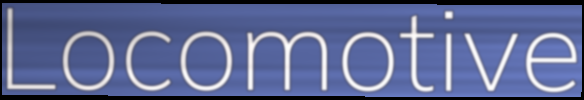
Locomotive